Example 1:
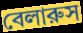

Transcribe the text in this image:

বেলারুস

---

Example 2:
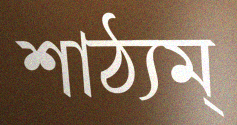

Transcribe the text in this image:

শাঠ্যম্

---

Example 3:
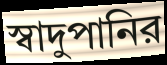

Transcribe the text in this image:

স্বাদুপানির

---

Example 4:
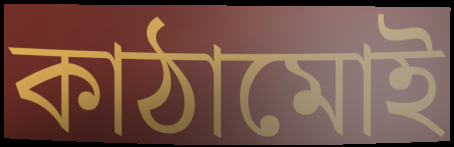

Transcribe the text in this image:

কাঠামোই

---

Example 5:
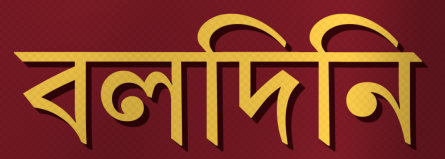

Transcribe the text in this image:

বলদিনি